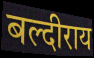
बल्दीराय